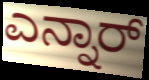
ಎನ್ನಾರ್